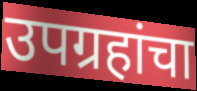
उपग्रहांचा